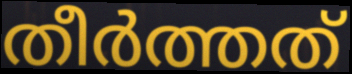
തീർത്തത്